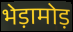
भेड़ामोड़